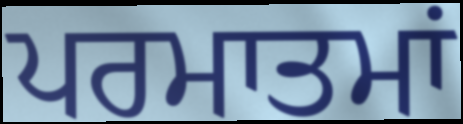
ਪਰਮਾਤਮਾਂ